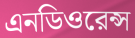
এনডিওরেন্স